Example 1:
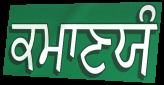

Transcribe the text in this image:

ਕਮਾਣਯੰ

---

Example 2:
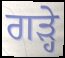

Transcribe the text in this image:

ਗੜ੍ਹੇ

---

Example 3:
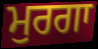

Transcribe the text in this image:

ਮੁਰਗਾ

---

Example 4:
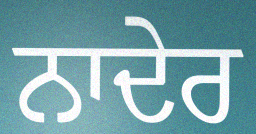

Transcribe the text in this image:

ਨਾਦੇਰ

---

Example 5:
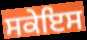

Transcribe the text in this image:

ਸਕੇਇਸ